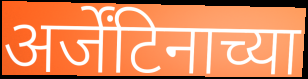
अर्जेंटिनाच्या